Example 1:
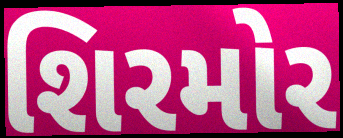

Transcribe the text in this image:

શિરમોર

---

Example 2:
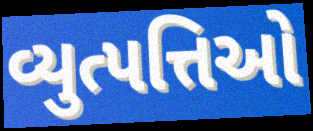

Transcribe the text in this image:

વ્યુત્પત્તિઓ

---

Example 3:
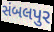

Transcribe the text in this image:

સંબલપુર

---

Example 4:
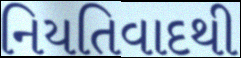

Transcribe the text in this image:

નિયતિવાદથી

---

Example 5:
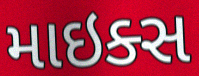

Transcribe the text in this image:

માઇક્સ